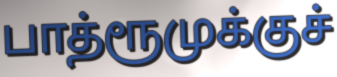
பாத்ரூமுக்குச்